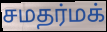
சமதர்மக்